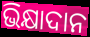
ଭିକ୍ଷାଦାନ